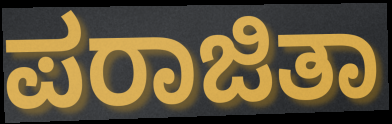
ಪರಾಜಿತಾ